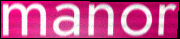
manor